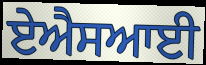
ਏਐਸਆਈ